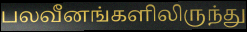
பலவீனங்களிலிருந்து